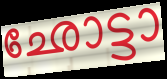
ഛോട്ടാ